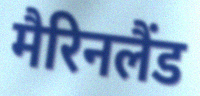
मैरिनलैंड